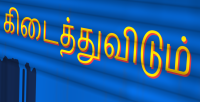
கிடைத்துவிடும்